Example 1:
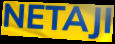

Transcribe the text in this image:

NETAJI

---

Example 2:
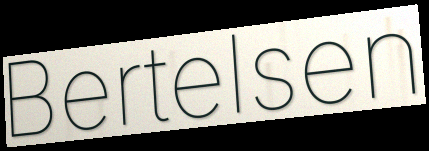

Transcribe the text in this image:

Bertelsen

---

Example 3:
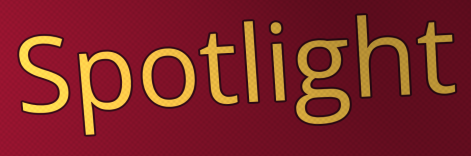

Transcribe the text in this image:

Spotlight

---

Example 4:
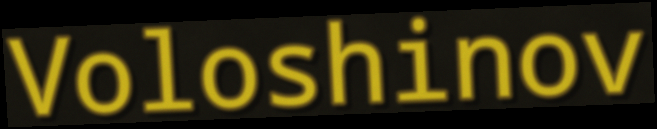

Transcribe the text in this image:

Voloshinov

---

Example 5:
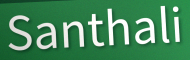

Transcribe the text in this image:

Santhali